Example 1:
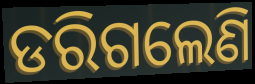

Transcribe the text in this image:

ଡରିଗଲେଣି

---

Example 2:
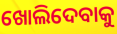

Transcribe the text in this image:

ଖୋଲିଦେବାକୁ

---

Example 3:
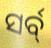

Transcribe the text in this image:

ସର୍ବ୍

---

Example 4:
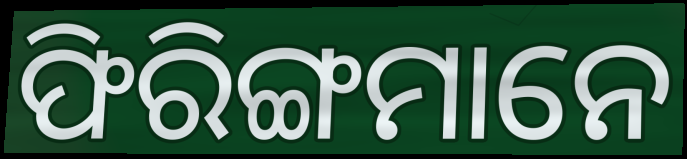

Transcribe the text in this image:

ଫିରିଙ୍ଗମାନେ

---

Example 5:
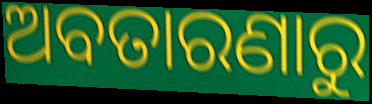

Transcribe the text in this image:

ଅବତାରଣାରୁ